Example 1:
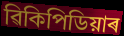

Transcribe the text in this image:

ৱিকিপিডিয়াৰ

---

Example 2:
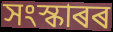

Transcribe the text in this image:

সংস্কাৰৰ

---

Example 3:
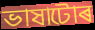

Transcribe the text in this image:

ভাষাটোৰ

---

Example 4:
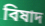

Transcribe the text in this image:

বিষাদ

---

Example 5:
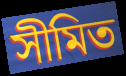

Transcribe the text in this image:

সীমিত